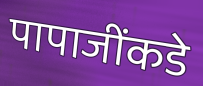
पापाजींकडे